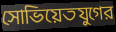
সোভিয়েতযুগের